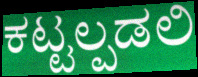
ಕಟ್ಟಲ್ಪಡಲಿ